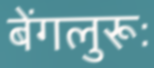
बेंगलुरूः